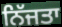
ਨਿੱਜਤਾ